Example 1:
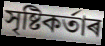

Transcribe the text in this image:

সৃষ্টিকৰ্তাৰ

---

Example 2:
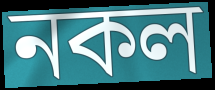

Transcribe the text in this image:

নকল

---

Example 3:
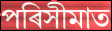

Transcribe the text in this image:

পৰিসীমাত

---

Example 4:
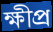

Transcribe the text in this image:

ক্ষীপ্ৰ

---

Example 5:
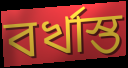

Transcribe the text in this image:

বৰ্খাস্ত